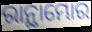
ରାନ୍ଥାମ୍ଭୋର